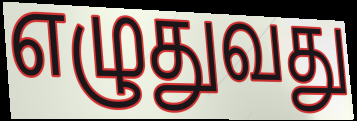
எழுதுவது